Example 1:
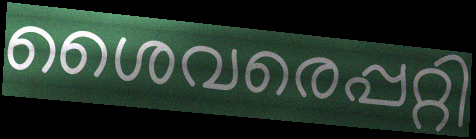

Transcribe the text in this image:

ശൈവരെപ്പറ്റി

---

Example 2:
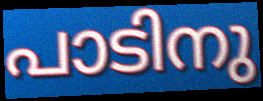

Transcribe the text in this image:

പാടിനു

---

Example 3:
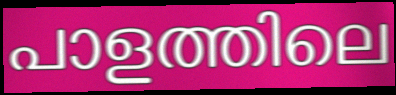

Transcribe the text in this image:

പാളത്തിലെ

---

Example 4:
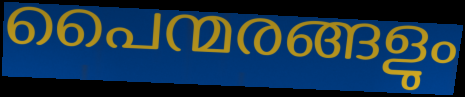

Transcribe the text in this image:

പൈന്മരങ്ങളും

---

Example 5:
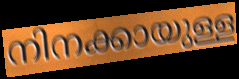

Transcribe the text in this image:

നിനക്കായുള്ള